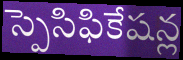
స్పెసిఫికేషన్ల